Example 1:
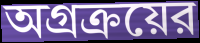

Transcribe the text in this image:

অগ্রক্রয়ের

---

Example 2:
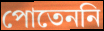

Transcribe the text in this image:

পোতেননি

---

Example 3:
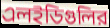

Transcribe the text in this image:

এলইডিগুলির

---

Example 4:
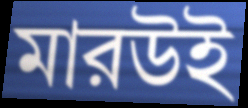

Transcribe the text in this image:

মারউই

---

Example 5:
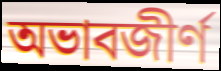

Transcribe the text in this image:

অভাবজীর্ণ